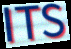
ITS